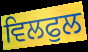
ਵਿਲਫੁਲ